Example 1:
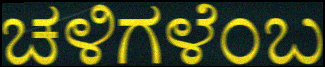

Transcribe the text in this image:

ಚಳಿಗಳೆಂಬ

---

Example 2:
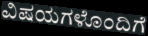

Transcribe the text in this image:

ವಿಷಯಗಳೊಂದಿಗೆ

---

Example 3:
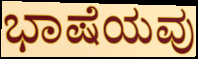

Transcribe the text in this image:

ಭಾಷೆಯವು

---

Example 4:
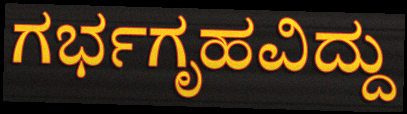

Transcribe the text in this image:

ಗರ್ಭಗೃಹವಿದ್ದು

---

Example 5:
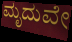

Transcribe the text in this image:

ಮೃದುವೇ